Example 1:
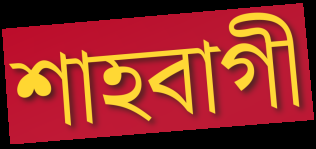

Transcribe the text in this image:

শাহবাগী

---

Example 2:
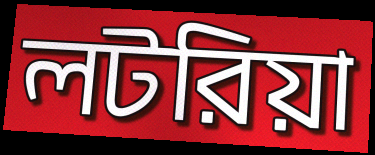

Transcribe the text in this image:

লটরিয়া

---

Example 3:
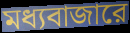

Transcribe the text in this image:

মধ্যবাজারে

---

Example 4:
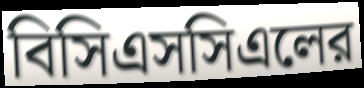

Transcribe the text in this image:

বিসিএসসিএলের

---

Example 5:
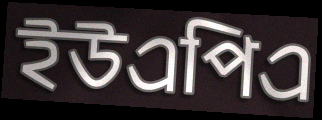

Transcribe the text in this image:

ইউএপিএ